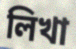
লিখা